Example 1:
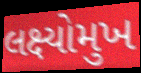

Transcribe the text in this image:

લક્ષ્યોમુખ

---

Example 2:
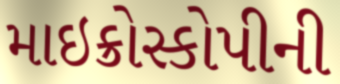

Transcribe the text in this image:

માઇક્રોસ્કોપીની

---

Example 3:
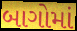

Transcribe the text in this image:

બાગોમાં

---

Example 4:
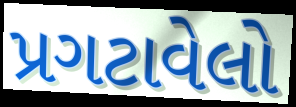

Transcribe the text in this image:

પ્રગટાવેલો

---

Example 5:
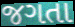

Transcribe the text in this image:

જગતા